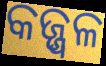
କଜ୍ଜ୍ୱଳ